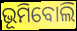
ଭୂମିବୋଲି